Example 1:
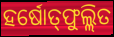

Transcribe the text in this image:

ହର୍ଷୋତ୍‌ଫୁଲ୍ଲିତ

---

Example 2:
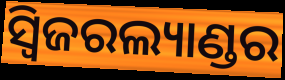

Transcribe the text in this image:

ସ୍ୱିଜରଲ୍ୟାଣ୍ଡର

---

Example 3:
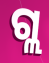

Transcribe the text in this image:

ଗ୍ଲ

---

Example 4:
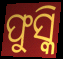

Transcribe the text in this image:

ଫୁସ୍କି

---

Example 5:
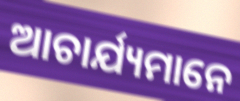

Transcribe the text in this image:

ଆଚାର୍ଯ୍ୟମାନେ